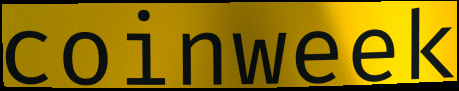
coinweek